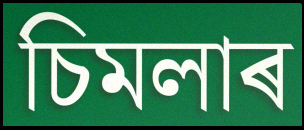
চিমলাৰ